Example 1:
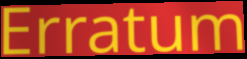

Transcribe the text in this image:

Erratum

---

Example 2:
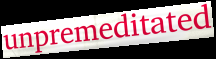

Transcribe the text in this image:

unpremeditated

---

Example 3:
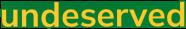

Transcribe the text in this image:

undeserved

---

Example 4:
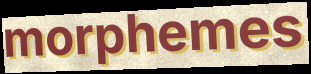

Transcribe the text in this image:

morphemes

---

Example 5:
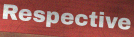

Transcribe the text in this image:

Respective